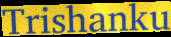
Trishanku